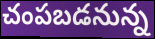
చంపబడనున్న